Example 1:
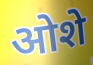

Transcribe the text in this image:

ओशे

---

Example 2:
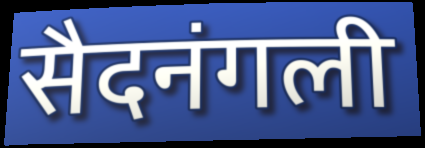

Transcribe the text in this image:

सैदनंगली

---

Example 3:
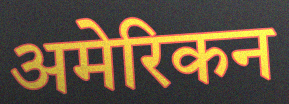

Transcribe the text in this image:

अमेरिकन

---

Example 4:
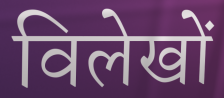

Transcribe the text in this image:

विलेखों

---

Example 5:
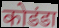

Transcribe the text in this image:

कोडंडा